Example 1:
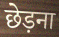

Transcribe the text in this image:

छेड़ना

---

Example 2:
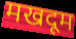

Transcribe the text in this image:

मखदूम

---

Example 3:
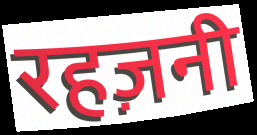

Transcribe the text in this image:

रहज़नी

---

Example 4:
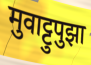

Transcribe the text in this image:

मुवाट्टुपुझा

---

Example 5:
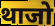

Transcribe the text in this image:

थाजो